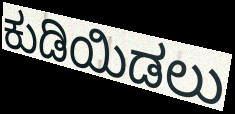
ಕುಡಿಯಿಡಲು